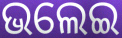
ଭଲେଇ